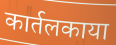
कार्तलकाया